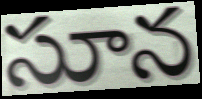
సూన